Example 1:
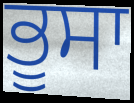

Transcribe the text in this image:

ਭੂਸਾ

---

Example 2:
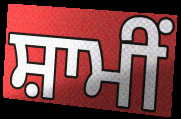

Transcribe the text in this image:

ਸ਼ਾਮੀਂ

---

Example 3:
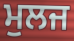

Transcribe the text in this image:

ਮੁਲਜ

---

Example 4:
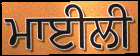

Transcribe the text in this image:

ਮਾਈਲੀ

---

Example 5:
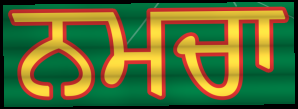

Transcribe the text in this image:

ਨਮਚਾ